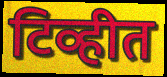
टिव्हीत